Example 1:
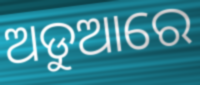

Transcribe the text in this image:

ଅଡୁଆରେ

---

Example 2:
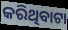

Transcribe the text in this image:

କରିଥିବାଟା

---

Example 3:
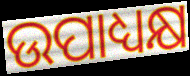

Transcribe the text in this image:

ଉପାଧ୍ୟକ୍ଷ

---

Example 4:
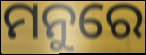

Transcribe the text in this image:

ମନୁରେ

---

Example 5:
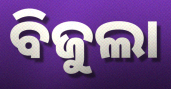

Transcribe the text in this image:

ବିଜୁଲା